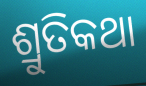
ଶ୍ରୁତିକଥା